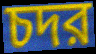
চদর